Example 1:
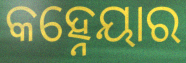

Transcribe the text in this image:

କହ୍ନେୟାର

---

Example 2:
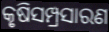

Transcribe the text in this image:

କୃଷିସମ୍ପ୍ରସାରଣ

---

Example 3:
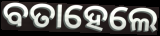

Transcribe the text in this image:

ବତାହେଲେ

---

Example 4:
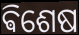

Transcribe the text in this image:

ଵିଶେଷ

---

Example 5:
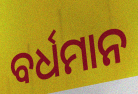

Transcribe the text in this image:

ବର୍ଧମାନ